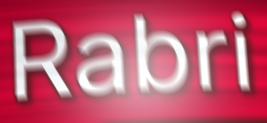
Rabri